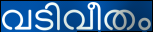
വടിവീതം